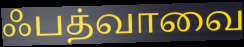
ஃபத்வாவை